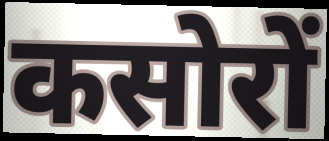
कसोरों